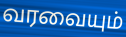
வரவையும்